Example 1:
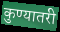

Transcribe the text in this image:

कुण्यातरी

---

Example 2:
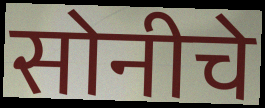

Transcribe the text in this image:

सोनीचे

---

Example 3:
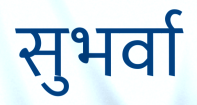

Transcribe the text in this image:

सुभर्वा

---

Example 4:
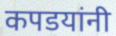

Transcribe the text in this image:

कपडयांनी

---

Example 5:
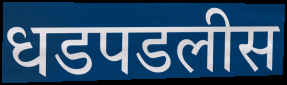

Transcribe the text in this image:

धडपडलीस